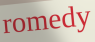
romedy